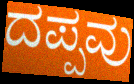
ದಪ್ಪವು